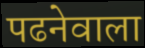
पढनेवाला